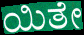
ಯಿತೇ